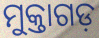
ମୁକ୍ତାଗଡ଼